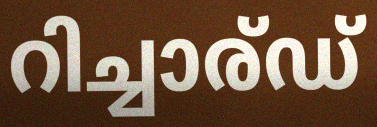
റിച്ചാര്ഡ്